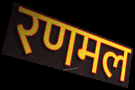
रणमल